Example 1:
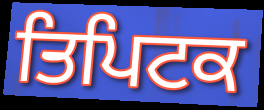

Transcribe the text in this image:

ਤਿਪਿਟਕ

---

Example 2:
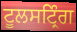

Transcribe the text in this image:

ਟੂਲਸਟ੍ਰਿੰਗ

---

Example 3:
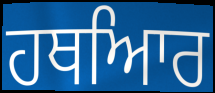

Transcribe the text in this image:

ਹਥਆਿਰ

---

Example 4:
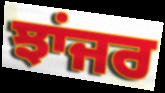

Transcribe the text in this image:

ਝਾਂਜਰ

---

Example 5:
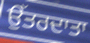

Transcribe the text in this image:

ਉੱਤਰਦਾਤਾ